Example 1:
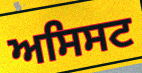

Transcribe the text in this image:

ਅਸਿਸਟ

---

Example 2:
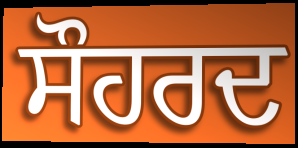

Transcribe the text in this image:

ਸੌਹਰਦ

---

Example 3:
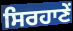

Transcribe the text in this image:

ਸਿਰਹਾਣੇਂ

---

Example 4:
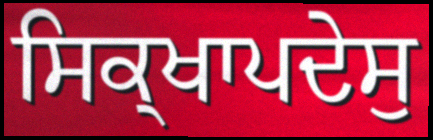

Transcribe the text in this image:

ਸਿਕ੍ਖਾਪਦੇਸੁ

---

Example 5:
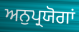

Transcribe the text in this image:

ਅਨੁਪ੍ਰਯੋਗਾਂ